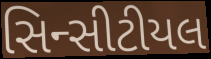
સિન્સીટીયલ